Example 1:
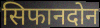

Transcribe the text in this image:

सिफानदोन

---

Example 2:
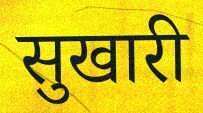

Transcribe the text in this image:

सुखारी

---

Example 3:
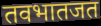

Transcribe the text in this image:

तवभातजत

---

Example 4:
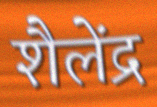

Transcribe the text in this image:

शैलेंद्र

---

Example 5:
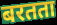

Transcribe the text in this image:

बरतता